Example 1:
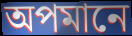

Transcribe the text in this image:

অপমানে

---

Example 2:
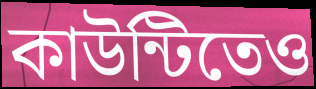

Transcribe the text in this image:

কাউন্টিতেও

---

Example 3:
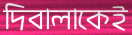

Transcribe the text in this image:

দিবালাকেই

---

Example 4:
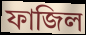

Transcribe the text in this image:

ফাজিল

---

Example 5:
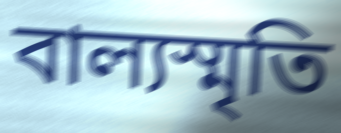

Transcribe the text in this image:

বাল্যস্মৃতি